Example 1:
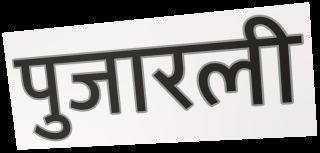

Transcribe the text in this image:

पुजारली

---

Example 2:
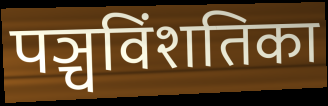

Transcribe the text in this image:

पञ्चविंशतिका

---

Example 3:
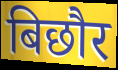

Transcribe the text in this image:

बिछौर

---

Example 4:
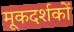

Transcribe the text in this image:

मूकदर्शकों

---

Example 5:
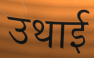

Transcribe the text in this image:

उथाई